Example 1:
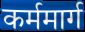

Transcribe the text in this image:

कर्ममार्ग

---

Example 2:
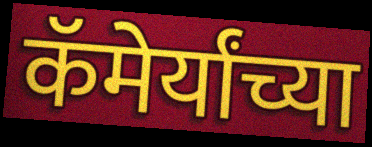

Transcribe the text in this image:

कॅमेर्यांच्या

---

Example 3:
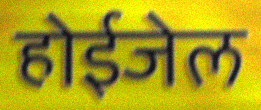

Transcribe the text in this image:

होईजेल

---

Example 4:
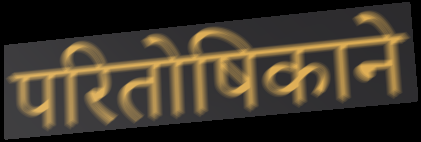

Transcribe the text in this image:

परितोषिकाने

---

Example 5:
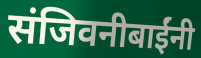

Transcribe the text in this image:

संजिवनीबाईंनी